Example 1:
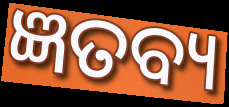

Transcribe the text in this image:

ଜ୍ଞତବ୍ୟ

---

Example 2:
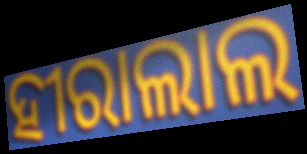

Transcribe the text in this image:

ହୀରାଲାଲ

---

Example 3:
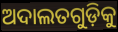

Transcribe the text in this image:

ଅଦାଲତଗୁଡ଼ିକୁ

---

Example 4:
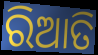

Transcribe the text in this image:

ରିଆତି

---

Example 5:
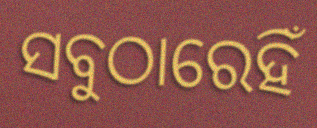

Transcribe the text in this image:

ସବୁଠାରେହିଁ